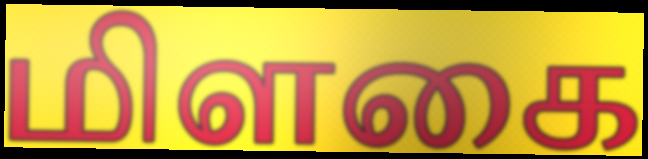
மிளகை